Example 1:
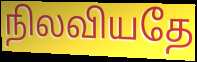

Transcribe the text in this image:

நிலவியதே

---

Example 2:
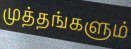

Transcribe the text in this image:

முத்தங்களும்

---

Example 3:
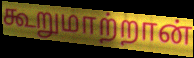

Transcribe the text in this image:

கூறுமாற்றான்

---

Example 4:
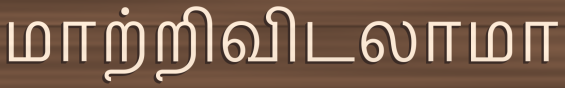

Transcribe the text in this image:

மாற்றிவிடலாமா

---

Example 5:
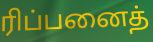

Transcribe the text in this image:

ரிப்பனைத்